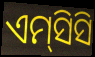
ଏମ୍‌ସିସି